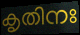
കൃതിനഃ